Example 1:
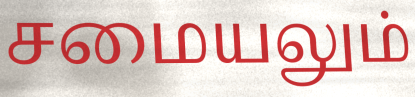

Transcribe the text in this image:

சமையலும்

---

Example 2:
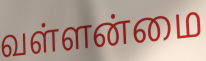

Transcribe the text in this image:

வள்ளன்மை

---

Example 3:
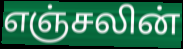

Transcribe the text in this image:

எஞ்சலின்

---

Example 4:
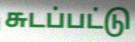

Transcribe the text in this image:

சுடப்பட்டு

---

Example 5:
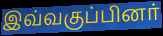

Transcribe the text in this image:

இவ்வகுப்பினர்